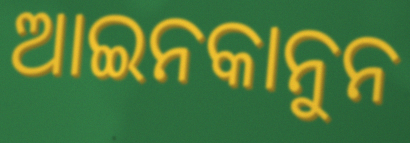
ଆଇନକାନୁନ